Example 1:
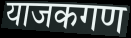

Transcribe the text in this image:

याजकगण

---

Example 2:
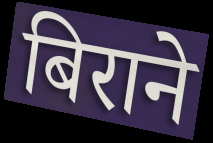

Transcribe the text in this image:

बिराने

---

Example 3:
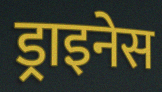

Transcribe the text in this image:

ड्राइनेस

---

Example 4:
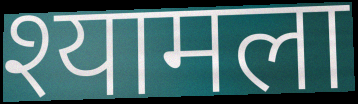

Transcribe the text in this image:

श्यामला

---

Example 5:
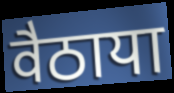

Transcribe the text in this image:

वैठाया